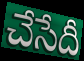
చేసేదీ